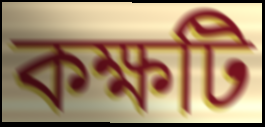
কক্ষটি